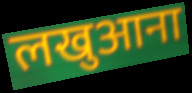
लखुआना